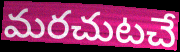
మరచుటచే